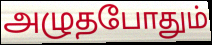
அழுதபோதும்